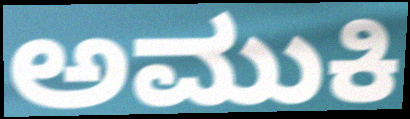
ಅಮುಕಿ